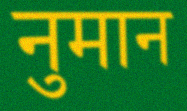
नुमान